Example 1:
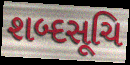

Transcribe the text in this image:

શબ્દસૂચિ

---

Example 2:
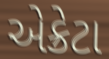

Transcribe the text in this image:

એક્રેટા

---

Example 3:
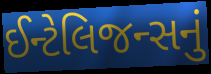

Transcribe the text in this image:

ઈન્ટેલિજન્સનું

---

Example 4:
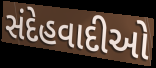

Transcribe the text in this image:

સંદેહવાદીઓ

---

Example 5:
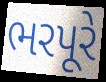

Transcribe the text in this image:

ભરપૂરે